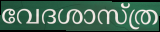
വേദശാസ്ത്ര